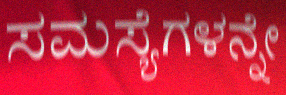
ಸಮಸ್ಯೆಗಳನ್ನೇ